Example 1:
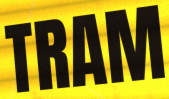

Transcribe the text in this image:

TRAM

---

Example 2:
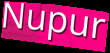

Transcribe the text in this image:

Nupur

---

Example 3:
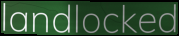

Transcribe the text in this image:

landlocked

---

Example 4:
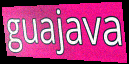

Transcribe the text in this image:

guajava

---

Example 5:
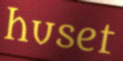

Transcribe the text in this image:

huset